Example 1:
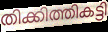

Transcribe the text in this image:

തിക്കിത്തികട്ടി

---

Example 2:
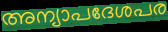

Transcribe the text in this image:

അന്യാപദേശപര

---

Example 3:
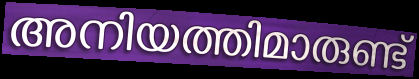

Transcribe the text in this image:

അനിയത്തിമാരുണ്ട്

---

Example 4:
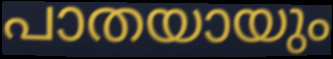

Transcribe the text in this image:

പാതയായും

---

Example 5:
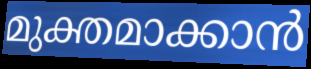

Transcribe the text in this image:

മുക്തമാക്കാൻ